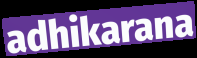
adhikarana